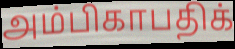
அம்பிகாபதிக்